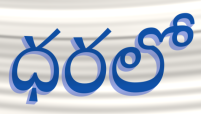
ధరలో